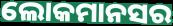
ଲୋକମାନସର